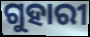
ଗୁହାରୀ